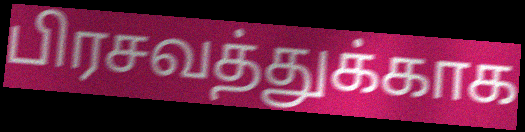
பிரசவத்துக்காக